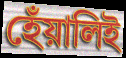
হেঁয়ালিই